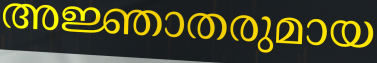
അജ്ഞാതരുമായ